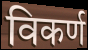
विकर्ण